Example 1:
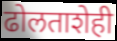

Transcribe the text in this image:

ढोलताशेही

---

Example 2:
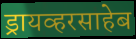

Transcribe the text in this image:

ड्रायव्हरसाहेब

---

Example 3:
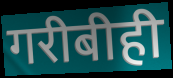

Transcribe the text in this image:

गरीबीही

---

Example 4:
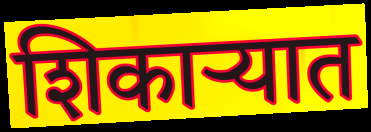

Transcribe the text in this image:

शिकाऱ्यात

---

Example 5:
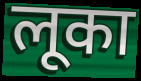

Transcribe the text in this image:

लूका